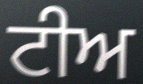
ਟੀਅ